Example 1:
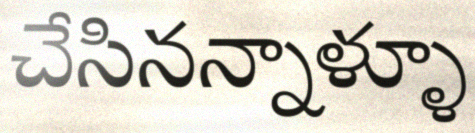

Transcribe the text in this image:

చేసినన్నాళ్ళూ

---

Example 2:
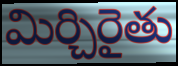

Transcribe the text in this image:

మిర్చిరైతు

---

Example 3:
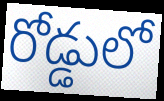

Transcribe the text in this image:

రోడ్డులో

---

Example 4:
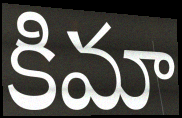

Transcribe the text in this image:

కిమా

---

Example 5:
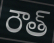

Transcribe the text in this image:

రౌత్